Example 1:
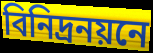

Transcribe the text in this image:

বিনিদ্রনয়নে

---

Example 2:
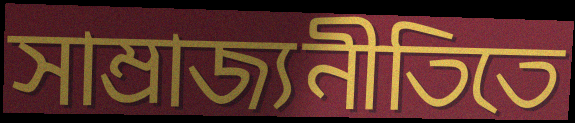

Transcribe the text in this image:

সাম্রাজ্যনীতিতে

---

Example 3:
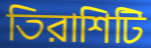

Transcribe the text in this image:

তিরাশিটি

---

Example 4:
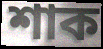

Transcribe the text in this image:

শাক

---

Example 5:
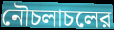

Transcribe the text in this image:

নৌচলাচলের